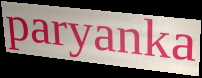
paryanka